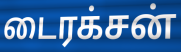
டைரக்சன்